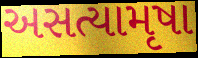
અસત્યામૃષા